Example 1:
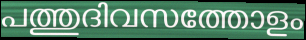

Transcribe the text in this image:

പത്തുദിവസത്തോളം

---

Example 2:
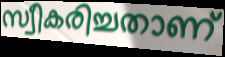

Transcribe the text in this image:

സ്വീകരിച്ചതാണ്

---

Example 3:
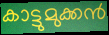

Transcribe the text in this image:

കാട്ടുമുക്കൻ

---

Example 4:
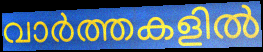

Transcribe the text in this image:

വാർത്തകളിൽ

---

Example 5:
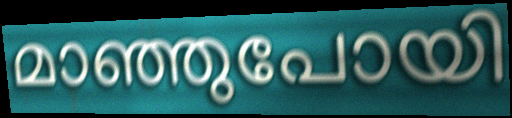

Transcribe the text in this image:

മാഞ്ഞുപോയി